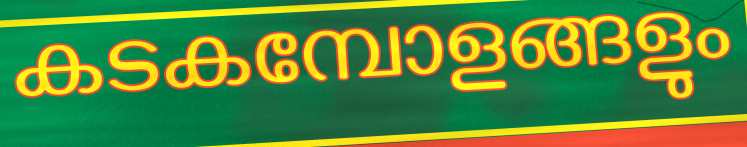
കടകമ്പോളങ്ങളും